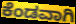
ಕೆಂಡವಾಗಿ